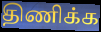
திணிக்க